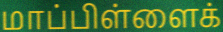
மாப்பிள்ளைக்